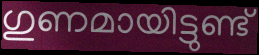
ഗുണമായിട്ടുണ്ട്